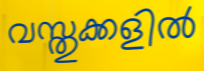
വസ്തുക്കളിൽ